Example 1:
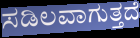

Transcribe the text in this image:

ಸಡಿಲವಾಗುತ್ತದೆ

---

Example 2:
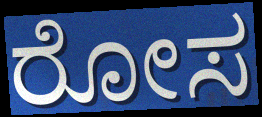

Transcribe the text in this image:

ರೋಸ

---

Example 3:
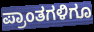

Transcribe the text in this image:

ಪ್ರಾಂತಗಳಿಗೂ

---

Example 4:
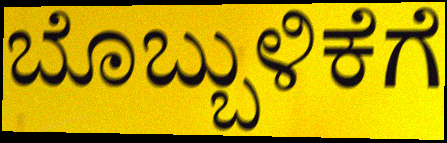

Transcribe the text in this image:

ಬೊಬ್ಬುಳಿಕೆಗೆ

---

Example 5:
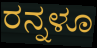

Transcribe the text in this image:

ರನ್ನಳೂ